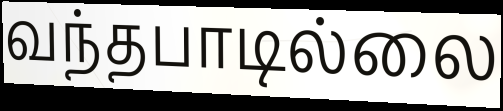
வந்தபாடில்லை